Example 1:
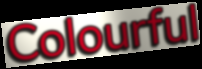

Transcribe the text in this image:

Colourful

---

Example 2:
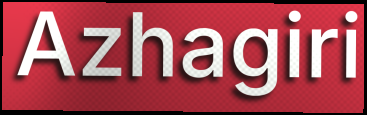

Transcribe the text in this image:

Azhagiri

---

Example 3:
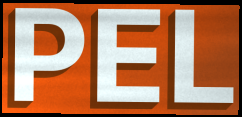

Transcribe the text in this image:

PEL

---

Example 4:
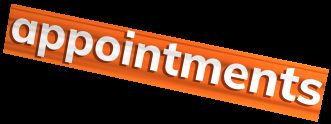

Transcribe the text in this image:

appointments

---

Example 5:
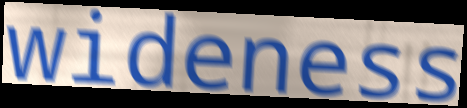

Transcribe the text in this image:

wideness